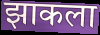
झाकला